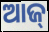
ଆଜ୍